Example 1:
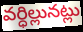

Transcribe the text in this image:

వర్ధిల్లునట్లు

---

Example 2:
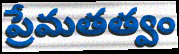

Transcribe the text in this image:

ప్రేమతత్వం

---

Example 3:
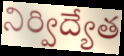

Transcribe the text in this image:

నిర్విద్యేత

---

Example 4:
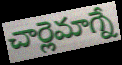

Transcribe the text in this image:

చార్లెమాగ్నే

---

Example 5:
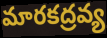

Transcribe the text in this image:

మారకద్రవ్య